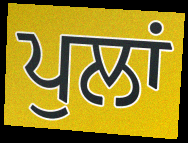
ਪੁਲਾਂ